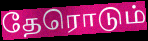
தேரொடும்